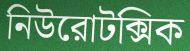
নিউরোটক্সিক